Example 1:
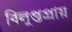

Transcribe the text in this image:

বিলুপ্তপ্ৰায়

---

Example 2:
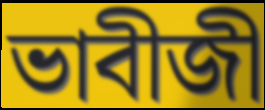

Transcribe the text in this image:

ভাবীজী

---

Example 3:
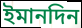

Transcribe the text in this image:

ইমানদিন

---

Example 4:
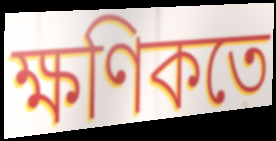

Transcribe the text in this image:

ক্ষণিকতে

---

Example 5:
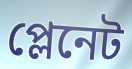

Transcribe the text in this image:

প্লেনেট